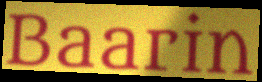
Baarin